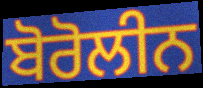
ਬੋਰੋਲੀਨ